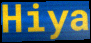
Hiya